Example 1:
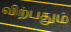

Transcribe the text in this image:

விற்பதும்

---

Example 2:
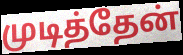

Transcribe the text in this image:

முடித்தேன்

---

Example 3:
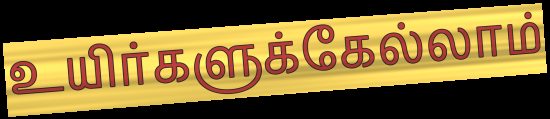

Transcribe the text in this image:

உயிர்களுக்கேல்லாம்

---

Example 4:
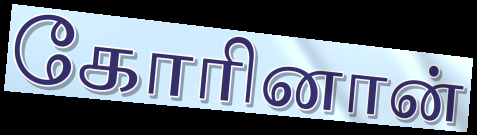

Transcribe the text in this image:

கோரினான்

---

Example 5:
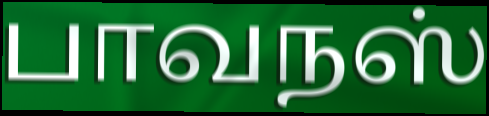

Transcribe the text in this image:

பாவநஸ்